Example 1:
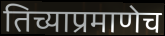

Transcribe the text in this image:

तिच्याप्रमाणेच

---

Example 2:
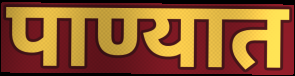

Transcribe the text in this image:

पाण्यात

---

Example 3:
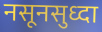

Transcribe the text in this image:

नसूनसुध्दा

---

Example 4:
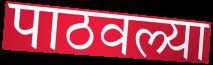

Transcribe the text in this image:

पाठवल्या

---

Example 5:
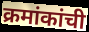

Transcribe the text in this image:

क्रमांकांची